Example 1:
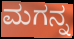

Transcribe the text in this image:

ಮಗನ್ನ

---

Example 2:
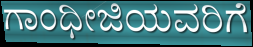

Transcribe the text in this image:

ಗಾಂಧೀಜಿಯವರಿಗೆ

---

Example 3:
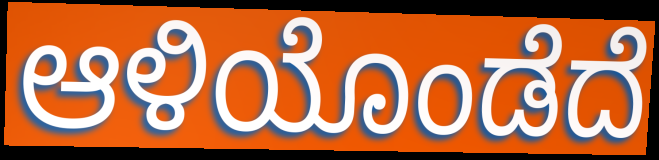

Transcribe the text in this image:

ಆಳಿಯೊಂಡೆದೆ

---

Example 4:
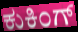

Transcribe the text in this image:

ಕುಕಿಂಗ್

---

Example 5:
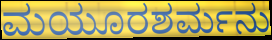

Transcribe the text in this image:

ಮಯೂರಶರ್ಮನು